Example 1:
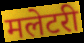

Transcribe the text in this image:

मलेटरी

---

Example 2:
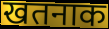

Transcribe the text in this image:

खतनाक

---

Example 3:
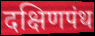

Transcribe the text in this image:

दक्षिणपंथ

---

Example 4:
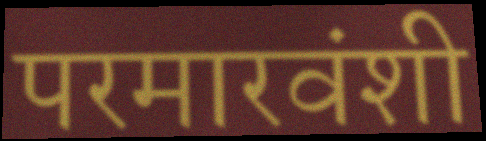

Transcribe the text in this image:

परमारवंशी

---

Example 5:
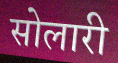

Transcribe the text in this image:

सोलारी